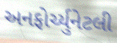
અનફોર્ચ્યુનેટલી